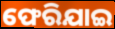
ଫେରିଯାଇ